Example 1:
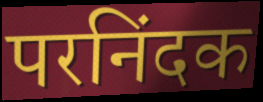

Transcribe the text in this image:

परनिंदक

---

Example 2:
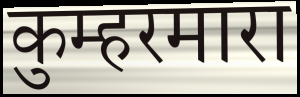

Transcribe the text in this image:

कुम्हरमारा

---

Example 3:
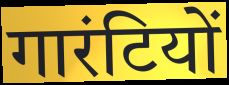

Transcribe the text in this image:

गारंटियों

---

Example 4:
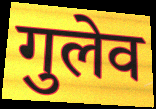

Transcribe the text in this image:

गुलेव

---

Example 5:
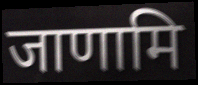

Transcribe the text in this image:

जाणामि